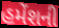
હમેંશની